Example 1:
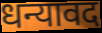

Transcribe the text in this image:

धन्यावद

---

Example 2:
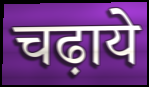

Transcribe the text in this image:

चढ़ाये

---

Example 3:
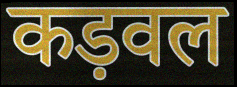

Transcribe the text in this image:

कड़वल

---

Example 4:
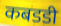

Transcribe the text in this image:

कबडडी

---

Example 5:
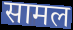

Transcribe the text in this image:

सामल